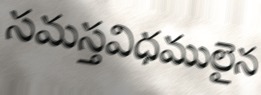
సమస్తవిధములైన